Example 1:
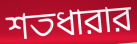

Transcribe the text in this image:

শতধারার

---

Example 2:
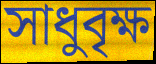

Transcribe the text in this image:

সাধুবৃক্ষ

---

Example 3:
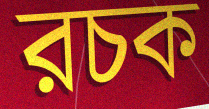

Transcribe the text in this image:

রচক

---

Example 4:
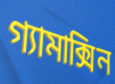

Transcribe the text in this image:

গ্যামাক্সিন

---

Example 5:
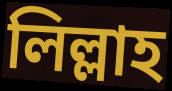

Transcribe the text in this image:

লিল্লাহ